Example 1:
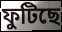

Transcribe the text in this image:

ফুটিছে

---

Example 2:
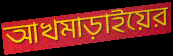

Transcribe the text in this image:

আখমাড়াইয়ের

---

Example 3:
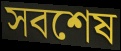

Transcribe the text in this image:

সবশেষ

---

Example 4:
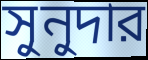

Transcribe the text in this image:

সুনুদার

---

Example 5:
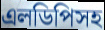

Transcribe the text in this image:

এলডিপিসহ